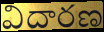
విదారణ